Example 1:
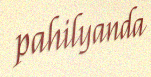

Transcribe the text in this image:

pahilyanda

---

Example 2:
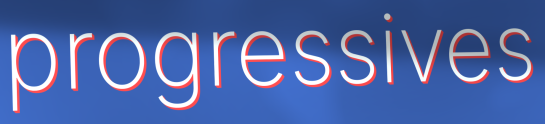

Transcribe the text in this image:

progressives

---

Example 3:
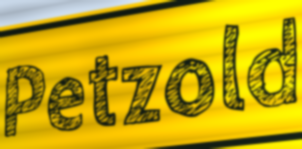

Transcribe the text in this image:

Petzold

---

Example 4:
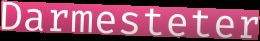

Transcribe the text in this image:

Darmesteter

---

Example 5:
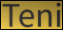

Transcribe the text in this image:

Teni